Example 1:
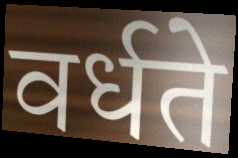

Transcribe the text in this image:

वर्धते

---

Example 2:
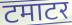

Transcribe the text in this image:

टमाटर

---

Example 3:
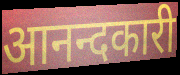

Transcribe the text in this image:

आनन्दकारी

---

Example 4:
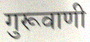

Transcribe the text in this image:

गुरूवाणी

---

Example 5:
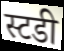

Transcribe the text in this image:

स्टडी